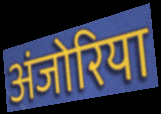
अंजोरिया